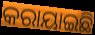
କରାୟାଇଛି